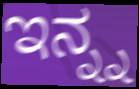
ಇನ್ನ್ನ